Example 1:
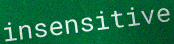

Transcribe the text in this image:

insensitive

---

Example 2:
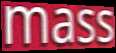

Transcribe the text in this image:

mass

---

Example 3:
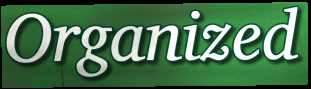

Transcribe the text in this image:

Organized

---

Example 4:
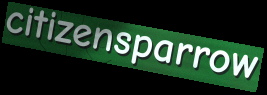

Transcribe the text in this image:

citizensparrow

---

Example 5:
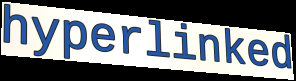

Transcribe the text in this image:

hyperlinked